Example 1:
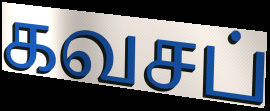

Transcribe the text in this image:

கவசப்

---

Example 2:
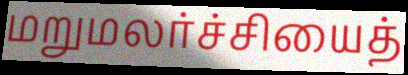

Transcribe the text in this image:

மறுமலர்ச்சியைத்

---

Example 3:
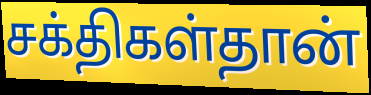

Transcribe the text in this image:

சக்திகள்தான்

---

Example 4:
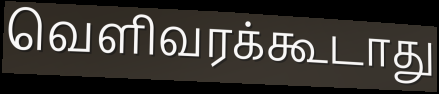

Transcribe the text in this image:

வெளிவரக்கூடாது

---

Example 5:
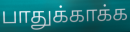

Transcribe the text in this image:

பாதுக்காக்க